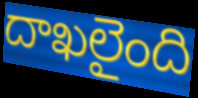
దాఖలైంది